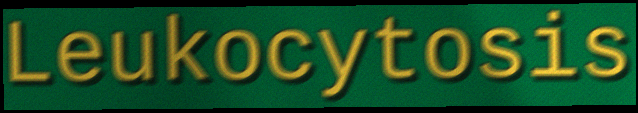
Leukocytosis